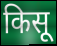
किसू